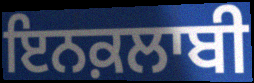
ਇਨਕ਼ਲਾਬੀ